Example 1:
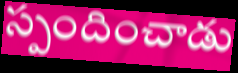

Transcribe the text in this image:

స్పందించాడు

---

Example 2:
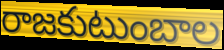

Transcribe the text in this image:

రాజకుటుంబాల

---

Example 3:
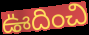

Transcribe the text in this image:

ఊదించి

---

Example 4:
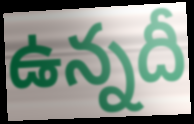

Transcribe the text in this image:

ఉన్నదీ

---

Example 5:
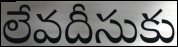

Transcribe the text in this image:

లేవదీసుకు